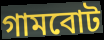
গামবোট